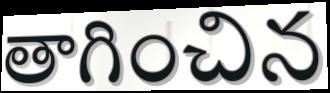
తాగించిన